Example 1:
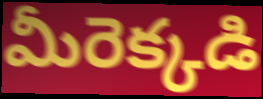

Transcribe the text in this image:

మీరెక్కడి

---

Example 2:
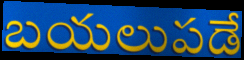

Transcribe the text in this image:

బయలుపడే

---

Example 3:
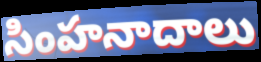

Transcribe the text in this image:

సింహనాదాలు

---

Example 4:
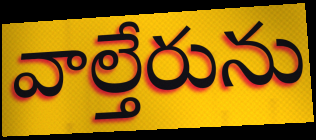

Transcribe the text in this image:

వాల్తేరును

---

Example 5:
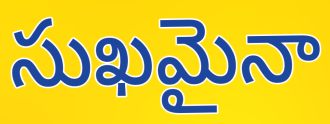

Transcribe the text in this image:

సుఖమైనా